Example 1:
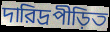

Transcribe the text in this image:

দারিদ্রপীড়িত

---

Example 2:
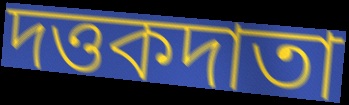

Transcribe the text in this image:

দত্তকদাতা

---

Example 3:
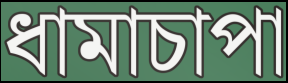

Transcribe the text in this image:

ধামাচাপা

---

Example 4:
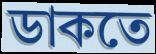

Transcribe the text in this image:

ডাকতে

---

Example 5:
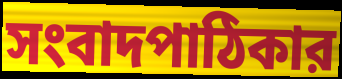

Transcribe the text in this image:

সংবাদপাঠিকার